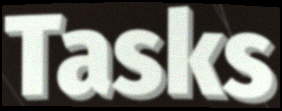
Tasks